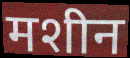
मशीन